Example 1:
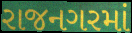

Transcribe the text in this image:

રાજનગરમાં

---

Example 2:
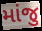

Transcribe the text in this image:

માંજુ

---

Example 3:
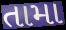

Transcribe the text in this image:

તામા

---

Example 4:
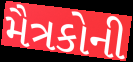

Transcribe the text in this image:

મૈત્રકોની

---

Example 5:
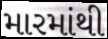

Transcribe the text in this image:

મારમાંથી